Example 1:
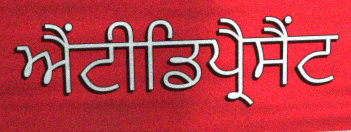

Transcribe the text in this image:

ਐਂਟੀਡਿਪ੍ਰੈਸੈਂਟ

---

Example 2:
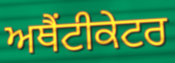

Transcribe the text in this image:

ਅਥੈਂਟੀਕੇਟਰ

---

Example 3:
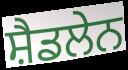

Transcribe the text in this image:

ਸ਼ੈਡਲੇਨ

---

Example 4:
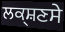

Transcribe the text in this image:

ਲਕ੍ਸ਼ਣਸੇ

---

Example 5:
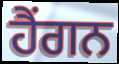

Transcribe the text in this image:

ਹੈਂਗਨ